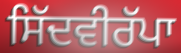
ਸਿੱਦਵੀਰੱਪਾ